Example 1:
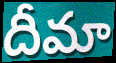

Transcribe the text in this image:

దీమా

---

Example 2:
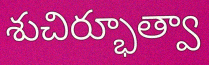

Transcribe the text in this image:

శుచిర్భూత్వా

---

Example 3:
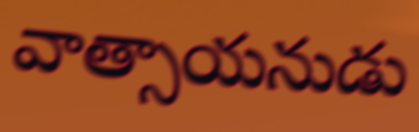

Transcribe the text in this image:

వాత్సాయనుడు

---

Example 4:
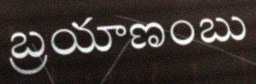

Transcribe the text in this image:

బ్రయాణంబు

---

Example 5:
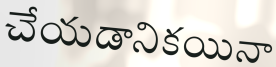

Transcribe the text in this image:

చేయడానికయినా